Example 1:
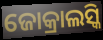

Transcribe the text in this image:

ଜୋକ୍ରାଲସ୍କି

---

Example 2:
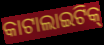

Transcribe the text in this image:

କାଟାଲାଇଟିକ୍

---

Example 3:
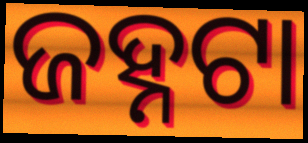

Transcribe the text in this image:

ଜହ୍ନଟା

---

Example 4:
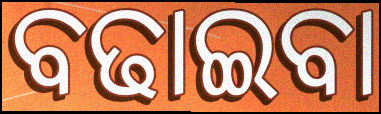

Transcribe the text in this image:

ବଢାଇବା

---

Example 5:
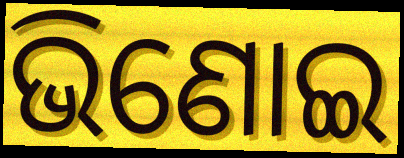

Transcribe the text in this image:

ଭିଣୋଇ